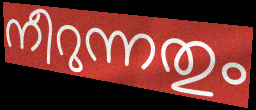
നീറുന്നതും